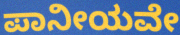
ಪಾನೀಯವೇ